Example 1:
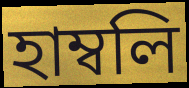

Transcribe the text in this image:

হাম্বলি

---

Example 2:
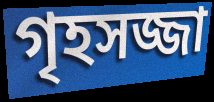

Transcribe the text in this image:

গৃহসজ্জা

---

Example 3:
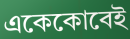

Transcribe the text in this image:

একেকোবেই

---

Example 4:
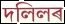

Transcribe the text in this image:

দলিলৰ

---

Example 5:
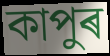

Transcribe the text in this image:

কাপুৰ